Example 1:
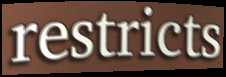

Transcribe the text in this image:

restricts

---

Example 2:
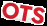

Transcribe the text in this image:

OTS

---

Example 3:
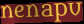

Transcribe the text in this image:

nenapu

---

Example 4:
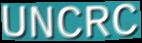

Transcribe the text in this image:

UNCRC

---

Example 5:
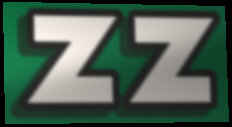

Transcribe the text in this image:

zz